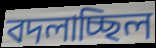
বদলাচ্ছিল